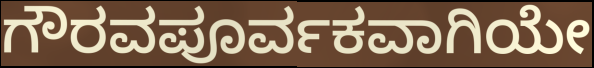
ಗೌರವಪೂರ್ವಕವಾಗಿಯೇ